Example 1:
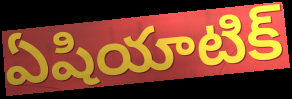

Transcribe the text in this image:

ఏషియాటిక్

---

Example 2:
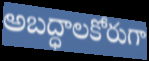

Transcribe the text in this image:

అబద్ధాలకోరుగా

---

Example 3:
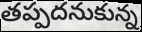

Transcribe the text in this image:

తప్పదనుకున్న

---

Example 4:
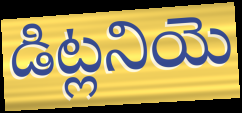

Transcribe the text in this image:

డిట్లనియె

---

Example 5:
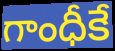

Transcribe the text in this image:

గాంధీకే